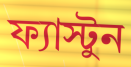
ফ্যাস্টুন